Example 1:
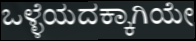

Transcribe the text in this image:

ಒಳ್ಳೆಯದಕ್ಕಾಗಿಯೇ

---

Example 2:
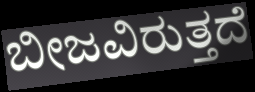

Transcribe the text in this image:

ಬೀಜವಿರುತ್ತದೆ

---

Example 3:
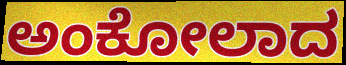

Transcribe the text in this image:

ಅಂಕೋಲಾದ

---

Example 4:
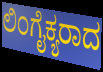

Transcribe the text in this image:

ಲಿಂಗೈಕ್ಯರಾದ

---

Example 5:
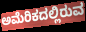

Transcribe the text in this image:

ಅಮೆರಿಕದಲ್ಲಿರುವ